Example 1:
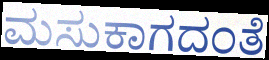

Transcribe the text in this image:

ಮಸುಕಾಗದಂತೆ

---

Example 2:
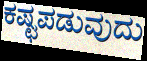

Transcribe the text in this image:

ಕಷ್ಟಪಡುವುದು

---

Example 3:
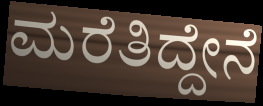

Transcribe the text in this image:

ಮರೆತಿದ್ದೇನೆ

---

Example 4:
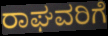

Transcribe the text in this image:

ರಾಘವರಿಗೆ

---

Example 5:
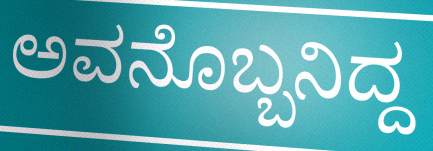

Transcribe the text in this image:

ಅವನೊಬ್ಬನಿದ್ದ